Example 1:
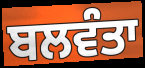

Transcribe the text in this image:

ਬਲਵੰਤਾ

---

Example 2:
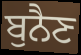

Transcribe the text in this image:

ਬੁਨੈਣ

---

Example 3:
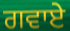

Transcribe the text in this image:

ਗਵਾਏ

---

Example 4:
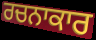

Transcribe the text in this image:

ਰਚਨਾਕਾਰ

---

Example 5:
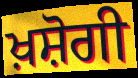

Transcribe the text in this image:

ਖ਼ਸ਼ੋਗੀ